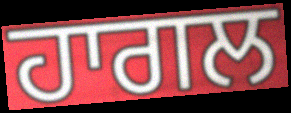
ਹਾਗਲ